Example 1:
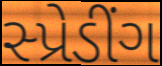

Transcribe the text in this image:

સ્પ્રેડીંગ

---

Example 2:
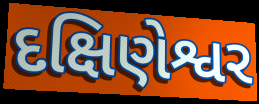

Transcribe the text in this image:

દક્ષિણેશ્વર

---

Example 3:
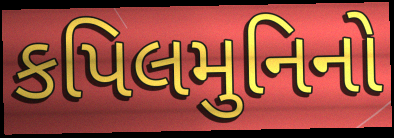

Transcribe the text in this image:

કપિલમુનિનો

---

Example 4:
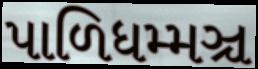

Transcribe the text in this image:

પાળિધમ્મઞ્ચ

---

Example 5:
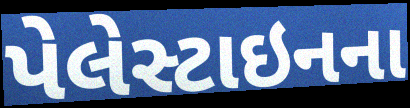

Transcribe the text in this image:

પેલેસ્ટાઇનના